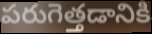
పరుగెత్తడానికి